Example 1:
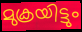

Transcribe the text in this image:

മുക്രയിട്ടും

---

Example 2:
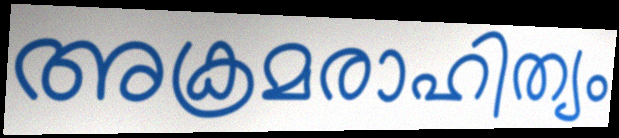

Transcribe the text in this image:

അക്രമരാഹിത്യം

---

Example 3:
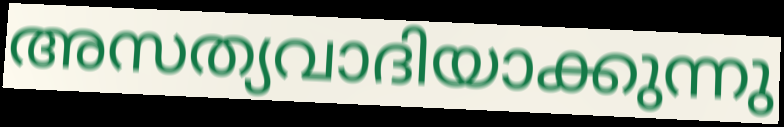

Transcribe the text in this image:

അസത്യവാദിയാക്കുന്നു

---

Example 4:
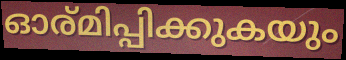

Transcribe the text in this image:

ഓര്മിപ്പിക്കുകയും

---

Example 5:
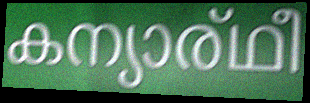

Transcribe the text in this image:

കന്യാര്ഥീ